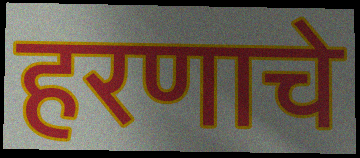
हरणाचे